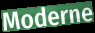
Moderne